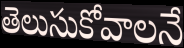
తెలుసుకోవాలనే